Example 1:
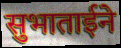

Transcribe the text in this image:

सुभाताईने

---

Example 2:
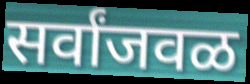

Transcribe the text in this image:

सर्वांजवळ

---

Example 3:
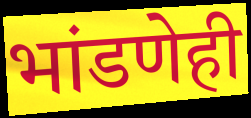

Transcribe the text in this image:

भांडणेही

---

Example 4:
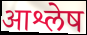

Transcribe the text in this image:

आश्लेष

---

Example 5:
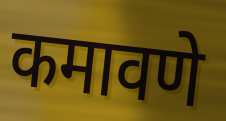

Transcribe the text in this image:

कमावणे